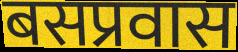
बसप्रवास